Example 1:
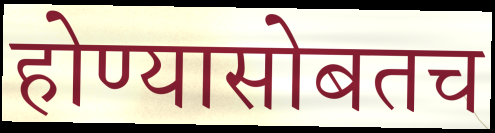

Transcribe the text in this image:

होण्यासोबतच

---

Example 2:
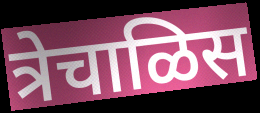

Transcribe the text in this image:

त्रेचाळिस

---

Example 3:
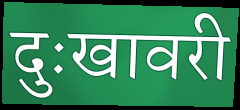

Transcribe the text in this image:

दुःखावरी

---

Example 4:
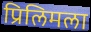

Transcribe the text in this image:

प्रिलिमला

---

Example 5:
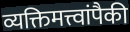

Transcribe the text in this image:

व्यक्तिमत्त्वांपैकी